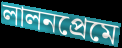
লালনপ্রেমে